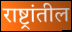
राष्ट्रांतील